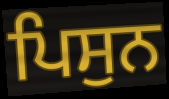
ਪਿਸੁਨ